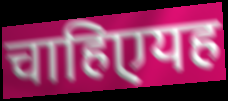
चाहिएयह